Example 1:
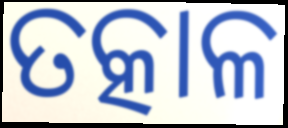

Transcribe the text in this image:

ତତ୍କାଳ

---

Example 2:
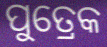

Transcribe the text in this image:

ପୁତ୍ରେକ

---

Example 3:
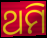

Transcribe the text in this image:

ଥମି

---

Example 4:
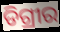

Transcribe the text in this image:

ଡିଗ୍ରୀର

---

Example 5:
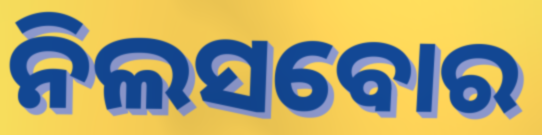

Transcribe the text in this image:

ନିଲସବୋର